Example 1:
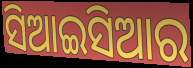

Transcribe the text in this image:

ସିଆଇସିଆର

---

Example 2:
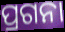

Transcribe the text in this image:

ପ୍ରଗନା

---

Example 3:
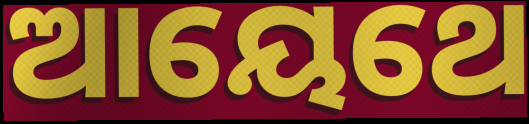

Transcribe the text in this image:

ଆୟେଥେ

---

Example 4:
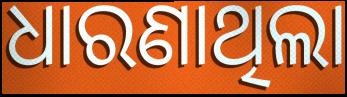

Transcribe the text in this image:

ଧାରଣାଥିଲା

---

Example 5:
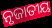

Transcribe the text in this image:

ନୃଜାତୀୟ